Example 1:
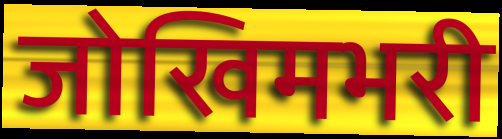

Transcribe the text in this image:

जोखिमभरी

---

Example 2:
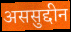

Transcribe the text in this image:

अससुद्दीन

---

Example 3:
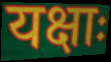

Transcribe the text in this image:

यक्षाः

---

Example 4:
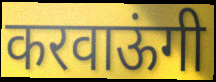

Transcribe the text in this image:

करवाऊंगी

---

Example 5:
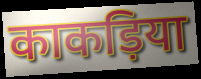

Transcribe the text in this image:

काकड़िया